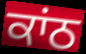
ਕਾਂਠ